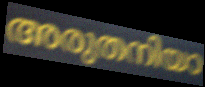
അരുതനിയാ